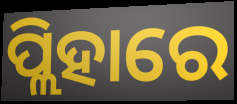
ପ୍ଲିହାରେ